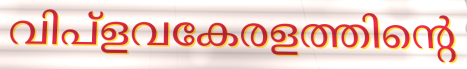
വിപ്ളവകേരളത്തിന്റെ